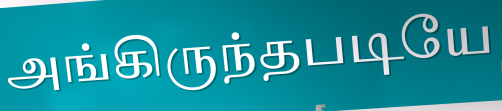
அங்கிருந்தபடியே